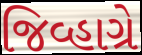
જિવ્હાગ્રે